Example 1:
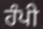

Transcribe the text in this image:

ਹੰਪੀ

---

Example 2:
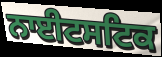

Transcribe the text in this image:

ਨਾਈਟਸਟਿਕ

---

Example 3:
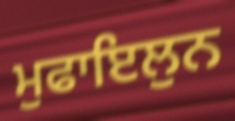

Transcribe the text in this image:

ਮੁਫਾਇਲੁਨ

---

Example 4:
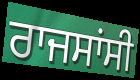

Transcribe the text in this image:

ਰਾਜਸਾਂਸੀ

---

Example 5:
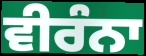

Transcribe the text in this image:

ਵੀਰੰਨਾ